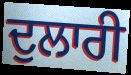
ਦੁਲਾਰੀ